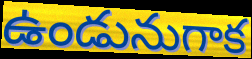
ఉండునుగాక